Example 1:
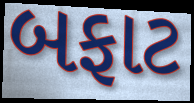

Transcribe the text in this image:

બફાટ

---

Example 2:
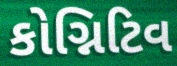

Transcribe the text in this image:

કોગ્નિટિવ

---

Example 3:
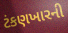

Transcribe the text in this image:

ટંકણખારની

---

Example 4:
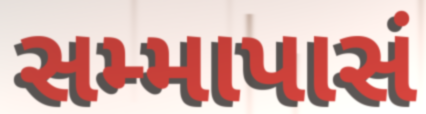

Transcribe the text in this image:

સમ્માપાસં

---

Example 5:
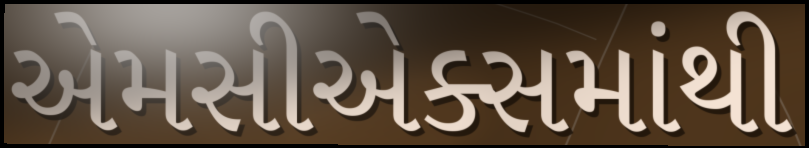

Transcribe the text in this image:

એમસીએક્સમાંથી